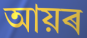
আয়ৰ